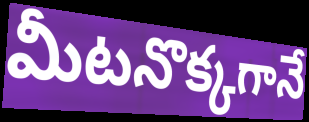
మీటనొక్కగానే